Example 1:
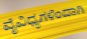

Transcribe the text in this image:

ವೈವಿಧ್ಯಗಳಿಂದಾಗಿ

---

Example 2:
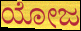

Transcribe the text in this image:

ಯೋಜ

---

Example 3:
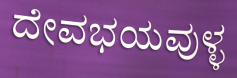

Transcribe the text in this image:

ದೇವಭಯವುಳ್ಳ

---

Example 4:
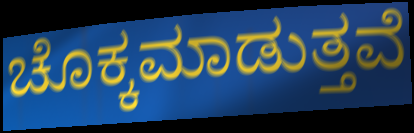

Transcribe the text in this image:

ಚೊಕ್ಕಮಾಡುತ್ತವೆ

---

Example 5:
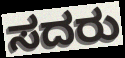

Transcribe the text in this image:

ಸದರು